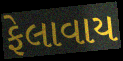
ફેલાવાય